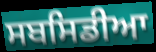
ਸਬਸਿਡੀਆ